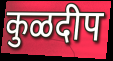
कुळदीप